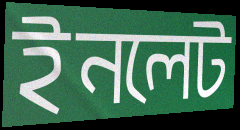
ইনলেট